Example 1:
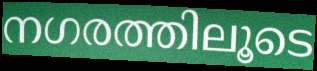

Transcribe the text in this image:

നഗരത്തിലൂടെ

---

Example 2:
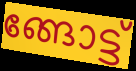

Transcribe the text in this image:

ങ്ങോട്ട്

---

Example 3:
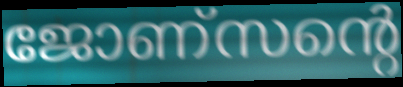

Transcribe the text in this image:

ജോണ്സന്റെ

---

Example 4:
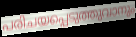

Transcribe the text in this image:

പരിചയപ്പെടുത്തുവാനും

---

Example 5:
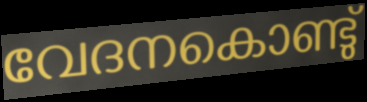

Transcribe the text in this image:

വേദനകൊണ്ടു്